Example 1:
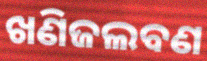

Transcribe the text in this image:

ଖଣିଜଲବଣ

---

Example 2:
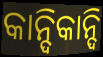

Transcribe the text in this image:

କାନ୍ଦିକାନ୍ଦି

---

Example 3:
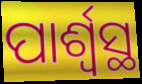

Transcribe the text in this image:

ପାର୍ଶ୍ୱସ୍ଥ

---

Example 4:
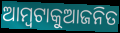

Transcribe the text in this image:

ଆମ୍ବଟାକୁଆଜନିତ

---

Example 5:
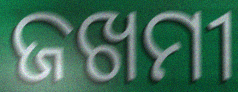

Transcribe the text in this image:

ଜଖମୀ